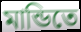
মান্ডিতে